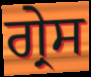
ਗ੍ਰੇਸ